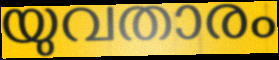
യുവതാരം